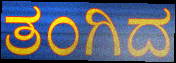
ತಂಗಿದ